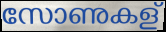
സോണുകള്